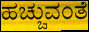
ಹಚ್ಚುವಂತೆ